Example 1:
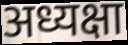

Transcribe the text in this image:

अध्यक्षा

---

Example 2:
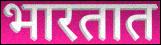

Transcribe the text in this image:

भारतात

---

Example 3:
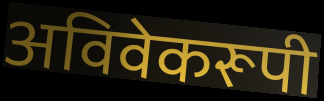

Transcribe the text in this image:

अविवेकरूपी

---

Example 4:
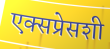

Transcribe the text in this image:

एक्सप्रेसशी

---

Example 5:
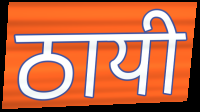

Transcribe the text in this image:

ठायी